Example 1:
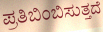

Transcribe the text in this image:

ಪ್ರತಿಬಿಂಬಿಸುತ್ತದೆ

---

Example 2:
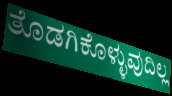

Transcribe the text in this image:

ತೊಡಗಿಕೊಳ್ಳುವುದಿಲ್ಲ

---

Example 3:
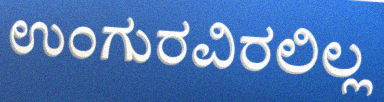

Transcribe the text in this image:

ಉಂಗುರವಿರಲಿಲ್ಲ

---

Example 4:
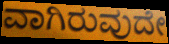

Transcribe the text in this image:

ವಾಗಿರುವುದೇ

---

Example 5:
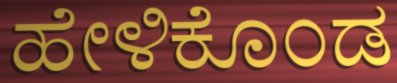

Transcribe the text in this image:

ಹೇಳಿಕೊಂಡ